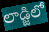
లాడ్జిలో